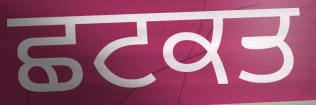
ਛਟਕਤ